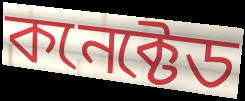
কনেক্টেড